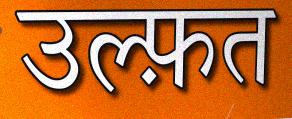
उल्फ़त